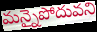
మన్నైపోదువని